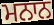
ਮਨਾਨ